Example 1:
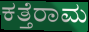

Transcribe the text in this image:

ಕತ್ತೆರಾಮ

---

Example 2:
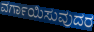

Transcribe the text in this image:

ವರ್ಗಾಯಿಸುವುದರ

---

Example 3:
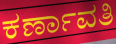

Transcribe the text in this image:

ಕರ್ಣಾವತಿ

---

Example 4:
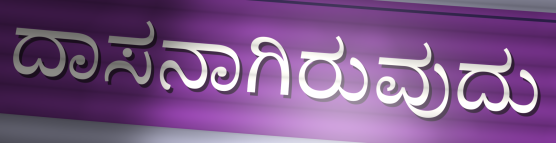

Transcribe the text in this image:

ದಾಸನಾಗಿರುವುದು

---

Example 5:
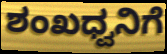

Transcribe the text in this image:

ಶಂಖಧ್ವನಿಗೆ